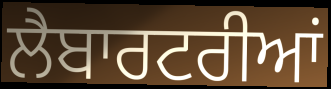
ਲੈਬਾਰਟਰੀਆਂ